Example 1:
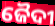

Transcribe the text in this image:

ଜୈଦୀ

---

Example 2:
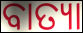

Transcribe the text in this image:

ବାତ୍ଯା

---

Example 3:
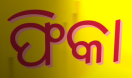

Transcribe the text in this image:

ଫିକା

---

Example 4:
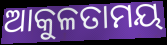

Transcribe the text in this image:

ଆକୁଳତାମୟ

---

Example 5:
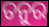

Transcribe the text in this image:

ତନୁର